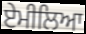
ਏਮੀਲਿਆ